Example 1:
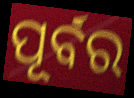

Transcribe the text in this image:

ପୂର୍ବର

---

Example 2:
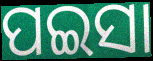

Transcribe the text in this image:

ପଇସା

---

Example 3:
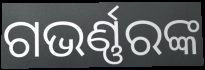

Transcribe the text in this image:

ଗଭର୍ଣ୍ଣରଙ୍କ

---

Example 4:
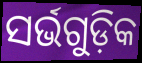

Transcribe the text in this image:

ସର୍ଭଗୁଡ଼ିକ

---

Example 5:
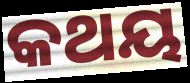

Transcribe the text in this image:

କଥୟ